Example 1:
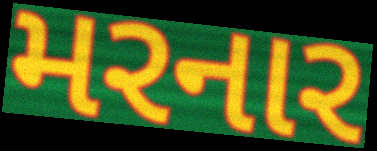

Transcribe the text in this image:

મરનાર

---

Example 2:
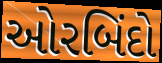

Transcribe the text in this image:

ઓરબિંદો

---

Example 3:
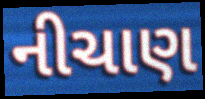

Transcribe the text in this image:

નીચાણ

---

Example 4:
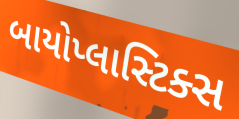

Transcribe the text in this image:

બાયોપ્લાસ્ટિક્સ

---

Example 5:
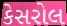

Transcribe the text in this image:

કેસરોલ